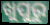
ଖୁପୁରୁ